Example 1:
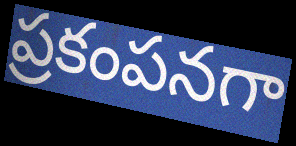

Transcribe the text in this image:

ప్రకంపనగా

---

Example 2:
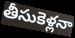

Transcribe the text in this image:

తీసుకెళ్లనా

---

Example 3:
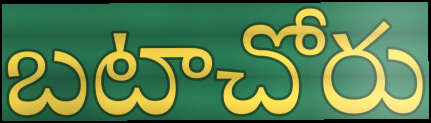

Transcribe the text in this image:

బటాచోరు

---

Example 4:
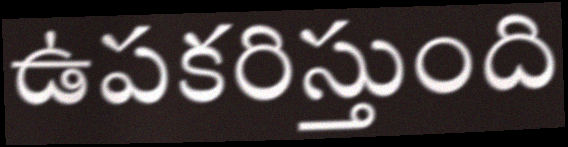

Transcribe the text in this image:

ఉపకరిస్తుంది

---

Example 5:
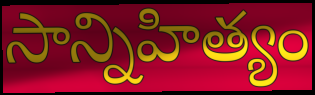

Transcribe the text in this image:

సాన్నిహిత్యం